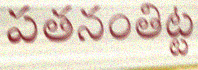
పతనంతిట్ట